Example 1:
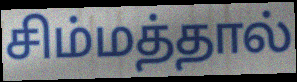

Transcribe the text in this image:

சிம்மத்தால்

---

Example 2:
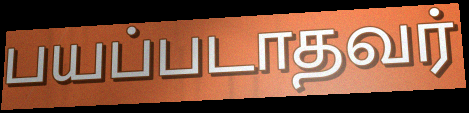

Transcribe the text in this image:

பயப்படாதவர்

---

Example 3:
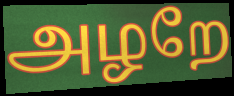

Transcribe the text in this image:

அழறே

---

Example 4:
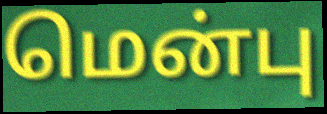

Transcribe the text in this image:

மென்பு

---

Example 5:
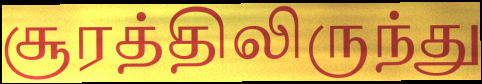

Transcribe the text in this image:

சூரத்திலிருந்து